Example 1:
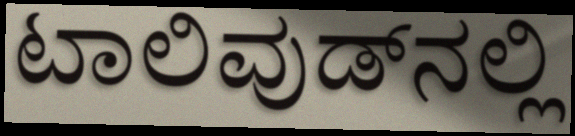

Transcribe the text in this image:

ಟಾಲಿವುಡ್‌ನಲ್ಲಿ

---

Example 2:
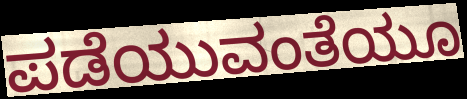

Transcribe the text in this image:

ಪಡೆಯುವಂತೆಯೂ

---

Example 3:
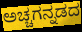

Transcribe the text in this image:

ಅಚ್ಚಗನ್ನಡದ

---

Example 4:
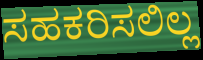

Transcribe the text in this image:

ಸಹಕರಿಸಲಿಲ್ಲ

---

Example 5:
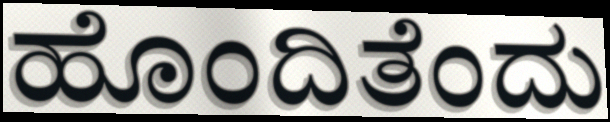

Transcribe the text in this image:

ಹೊಂದಿತೆಂದು